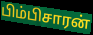
பிம்பிசாரன்